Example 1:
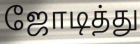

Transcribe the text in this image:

ஜோடித்து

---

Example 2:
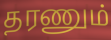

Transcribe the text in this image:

தரணும்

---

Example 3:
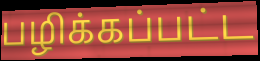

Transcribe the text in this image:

பழிக்கப்பட்ட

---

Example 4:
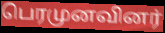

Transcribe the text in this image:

பெரமுனவினர்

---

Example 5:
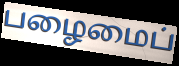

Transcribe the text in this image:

பழைமைப்